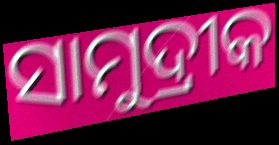
ସାମୁଦ୍ରୀକ